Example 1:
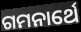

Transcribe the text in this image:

ଗମନାର୍ଥେ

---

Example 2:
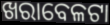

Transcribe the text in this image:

ଖରାବେଳଟା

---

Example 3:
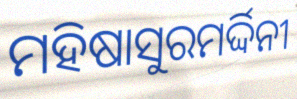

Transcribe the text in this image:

ମହିଷାସୁରମର୍ଦ୍ଦିନୀ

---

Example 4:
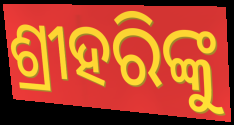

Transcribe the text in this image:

ଶ୍ରୀହରିଙ୍କୁ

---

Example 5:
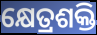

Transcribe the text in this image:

କ୍ଷେତ୍ରଶକ୍ତି